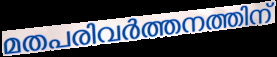
മതപരിവർത്തനത്തിന്